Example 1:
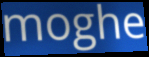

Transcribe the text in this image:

moghe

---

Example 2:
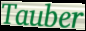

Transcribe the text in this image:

Tauber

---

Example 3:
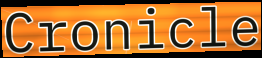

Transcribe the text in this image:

Cronicle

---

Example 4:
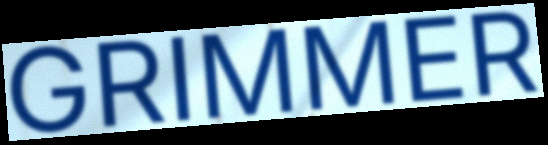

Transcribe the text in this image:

GRIMMER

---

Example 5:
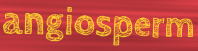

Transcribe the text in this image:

angiosperm